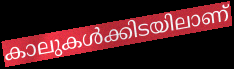
കാലുകൾക്കിടയിലാണ്